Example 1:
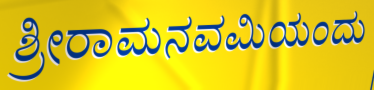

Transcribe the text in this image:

ಶ್ರೀರಾಮನವಮಿಯಂದು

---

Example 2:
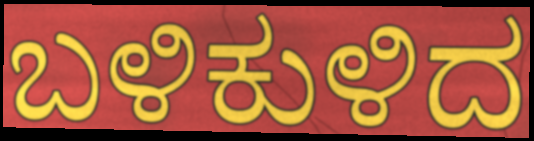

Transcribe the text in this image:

ಬಳಿಕುಳಿದ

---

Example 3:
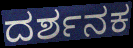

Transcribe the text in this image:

ದರ್ಶನಕ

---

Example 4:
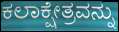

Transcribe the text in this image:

ಕಲಾಕ್ಷೇತ್ರವನ್ನು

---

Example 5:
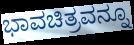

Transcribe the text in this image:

ಭಾವಚಿತ್ರವನ್ನೂ